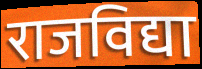
राजविद्या